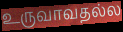
உருவாவதல்ல